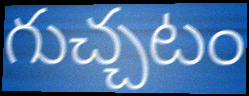
గుచ్చటం